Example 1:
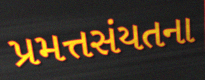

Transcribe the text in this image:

પ્રમત્તસંયતના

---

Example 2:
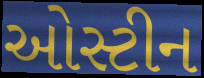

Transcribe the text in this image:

ઓસ્ટીન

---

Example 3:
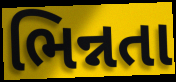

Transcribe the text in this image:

ભિન્નતા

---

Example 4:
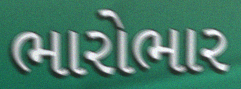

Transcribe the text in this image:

ભારોભાર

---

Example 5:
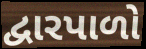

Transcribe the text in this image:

દ્વારપાળો